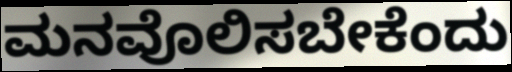
ಮನವೊಲಿಸಬೇಕೆಂದು